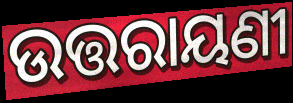
ଉତ୍ତରାୟଣୀ